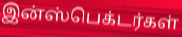
இன்ஸ்பெக்டர்கள்